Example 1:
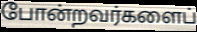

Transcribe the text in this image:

போன்றவர்களைப்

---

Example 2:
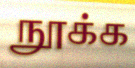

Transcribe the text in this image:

நூக்க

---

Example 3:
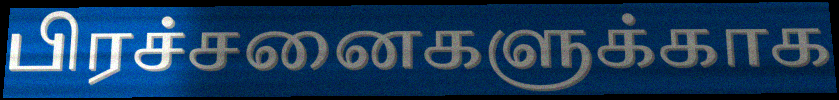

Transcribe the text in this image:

பிரச்சனைகளுக்காக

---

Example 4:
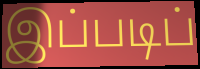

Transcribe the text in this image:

இப்படிப்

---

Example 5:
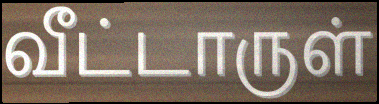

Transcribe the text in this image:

வீட்டாருள்